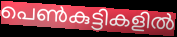
പെൺകുട്ടികളിൽ